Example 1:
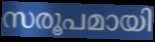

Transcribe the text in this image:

സരൂപമായി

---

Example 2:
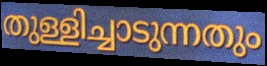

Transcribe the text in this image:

തുള്ളിച്ചാടുന്നതും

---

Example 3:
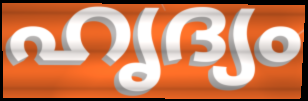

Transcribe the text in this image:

ഹൃദ്യം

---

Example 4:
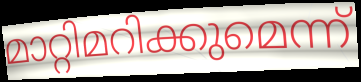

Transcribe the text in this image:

മാറ്റിമറിക്കുമെന്ന്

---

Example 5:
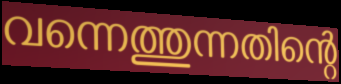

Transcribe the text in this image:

വന്നെത്തുന്നതിന്റെ